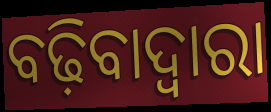
ବଢ଼ିବାଦ୍ୱାରା